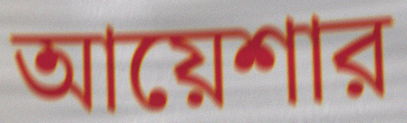
আয়েশার